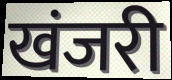
खंजरी